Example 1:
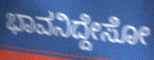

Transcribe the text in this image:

ಭಾವನಿದ್ದೇಸೋ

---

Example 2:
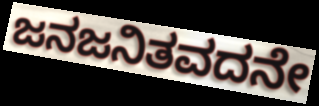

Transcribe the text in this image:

ಜನಜನಿತವದನೇ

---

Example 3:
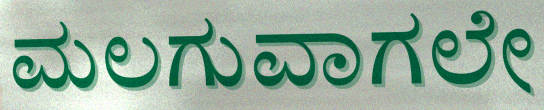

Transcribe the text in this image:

ಮಲಗುವಾಗಲೇ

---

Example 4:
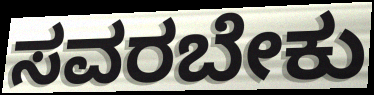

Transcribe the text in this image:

ಸವರಬೇಕು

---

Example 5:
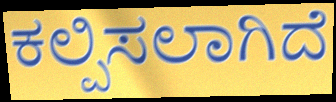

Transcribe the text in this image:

ಕಲ್ಪಿಸಲಾಗಿದೆ